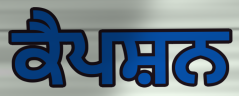
ਕੈਪਸ਼ਨ